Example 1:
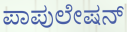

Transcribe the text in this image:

ಪಾಪುಲೇಷನ್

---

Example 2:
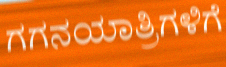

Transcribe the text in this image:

ಗಗನಯಾತ್ರಿಗಳಿಗೆ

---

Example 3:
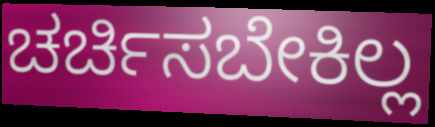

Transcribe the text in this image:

ಚರ್ಚಿಸಬೇಕಿಲ್ಲ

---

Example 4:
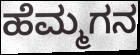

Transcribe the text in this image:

ಹೆಮ್ಮಗನ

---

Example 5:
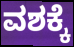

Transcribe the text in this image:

ವಶಕ್ಕೆ